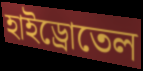
হাইড্রোতেল